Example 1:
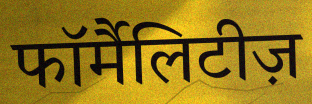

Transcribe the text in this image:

फॉर्मैलिटीज़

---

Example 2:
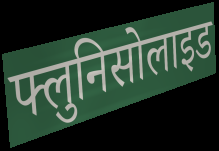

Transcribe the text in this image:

फ्लुनिसोलाइड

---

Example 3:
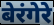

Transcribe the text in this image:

बेरंगेरे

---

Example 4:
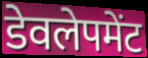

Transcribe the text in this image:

डेवलेपमेंट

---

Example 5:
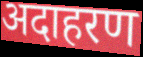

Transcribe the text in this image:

अदाहरण